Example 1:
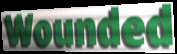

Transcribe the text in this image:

Wounded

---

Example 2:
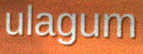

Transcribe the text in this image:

ulagum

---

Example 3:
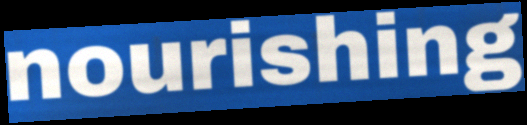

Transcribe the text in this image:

nourishing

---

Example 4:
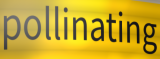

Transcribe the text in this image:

pollinating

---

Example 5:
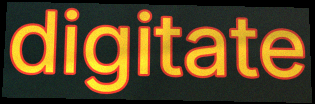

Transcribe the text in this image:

digitate